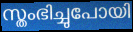
സ്തംഭിച്ചുപോയി